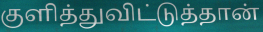
குளித்துவிட்டுத்தான்